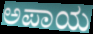
ಅಪಾಯ